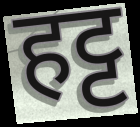
हट्ट